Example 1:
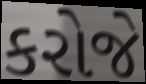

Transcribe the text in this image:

કરોજે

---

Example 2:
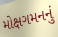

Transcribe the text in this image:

મોક્ષગમનનું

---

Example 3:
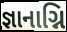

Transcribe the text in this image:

જ્ઞાનાગ્નિ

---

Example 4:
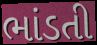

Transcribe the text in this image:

ભાંડતી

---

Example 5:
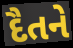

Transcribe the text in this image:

દૈતને